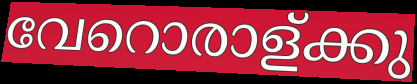
വേറൊരാള്ക്കു